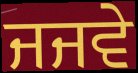
ਜਜਵੇ